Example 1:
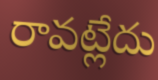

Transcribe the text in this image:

రావట్లేదు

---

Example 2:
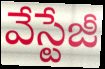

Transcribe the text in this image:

వేస్టేజీ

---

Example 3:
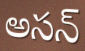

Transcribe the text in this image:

అసన్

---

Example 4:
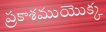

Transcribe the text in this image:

ప్రకాశముయొక్క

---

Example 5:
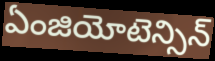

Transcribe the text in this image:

ఏంజియోటెన్సిన్